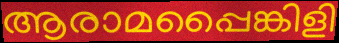
ആരാമപ്പൈങ്കിളി